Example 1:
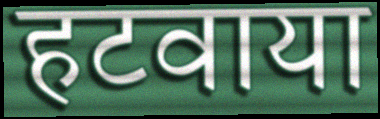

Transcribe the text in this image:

हटवाया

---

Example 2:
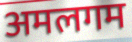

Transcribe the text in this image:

अमलगम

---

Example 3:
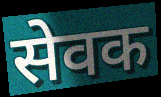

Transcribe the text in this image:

सेवक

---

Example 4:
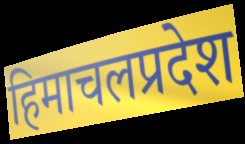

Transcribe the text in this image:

हिमाचलप्रदेश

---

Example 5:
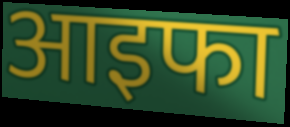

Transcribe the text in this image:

आइफा